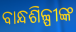
ବାନ୍ଧଶିଳ୍ପୀଙ୍କ